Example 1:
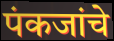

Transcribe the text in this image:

पंकजांचे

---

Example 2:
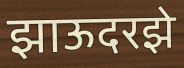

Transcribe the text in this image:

झाऊदरझे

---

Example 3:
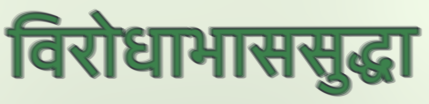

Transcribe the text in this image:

विरोधाभाससुद्धा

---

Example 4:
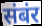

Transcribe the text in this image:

संबंर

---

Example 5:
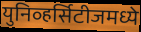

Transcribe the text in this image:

युनिव्हर्सिटीजमध्ये